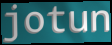
jotun